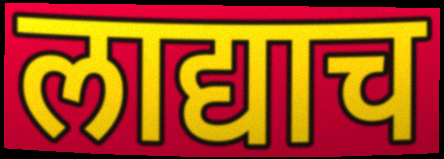
लाद्याच